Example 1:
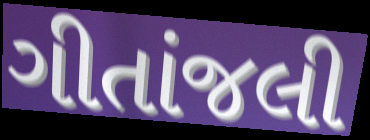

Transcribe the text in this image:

ગીતાંજલી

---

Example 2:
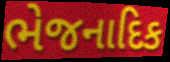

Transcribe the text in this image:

ભેજનાદિક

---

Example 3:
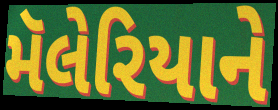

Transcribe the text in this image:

મૅલેરિયાને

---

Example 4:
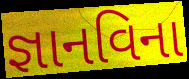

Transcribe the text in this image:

જ્ઞાનવિના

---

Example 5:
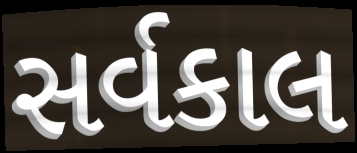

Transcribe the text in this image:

સર્વકાલ